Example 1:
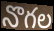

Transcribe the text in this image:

నొగల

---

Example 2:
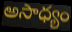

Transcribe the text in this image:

అసాధ్యం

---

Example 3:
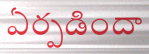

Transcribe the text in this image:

ఏర్పడిందా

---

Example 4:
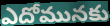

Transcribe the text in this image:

ఎదోమునకు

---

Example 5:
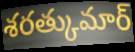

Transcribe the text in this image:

శరత్కుమార్